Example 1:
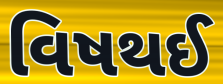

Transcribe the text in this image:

વિષથઈ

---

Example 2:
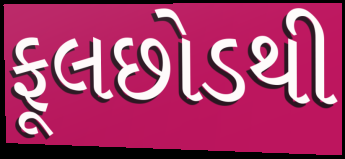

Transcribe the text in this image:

ફૂલછોડથી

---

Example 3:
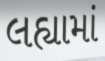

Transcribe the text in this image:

લહ્યામાં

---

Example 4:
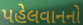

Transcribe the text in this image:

પહેલવાનનો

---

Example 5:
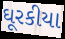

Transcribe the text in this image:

ઘૂરકીયા